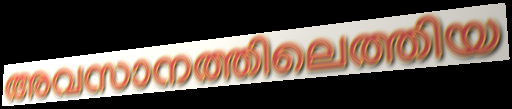
അവസാനത്തിലെത്തിയ